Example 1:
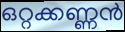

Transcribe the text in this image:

ഒറ്റക്കണ്ണൻ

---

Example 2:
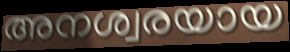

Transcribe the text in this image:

അനശ്വരയായ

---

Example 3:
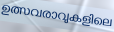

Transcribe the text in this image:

ഉത്സവരാവുകളിലെ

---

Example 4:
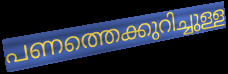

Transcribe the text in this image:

പണത്തെക്കുറിച്ചുള്ള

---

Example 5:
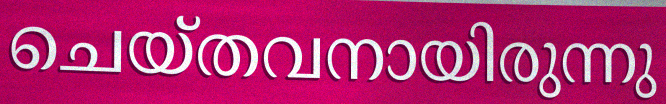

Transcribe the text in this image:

ചെയ്തവനായിരുന്നു